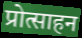
प्रोत्‍साहन